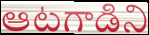
ఆటగాడిని